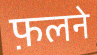
फ़लने